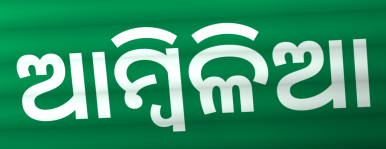
ଆମ୍ୱିଳିଆ